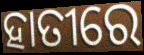
ହାତୀରେ